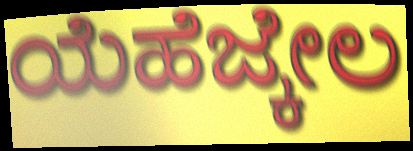
ಯೆಹೆಜ್ಕೇಲ